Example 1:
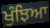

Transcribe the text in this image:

ਖੁੰਝਿਆ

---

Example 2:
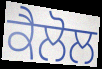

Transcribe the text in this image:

ਕੈਲੋਲ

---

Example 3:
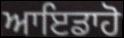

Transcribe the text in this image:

ਆਇਡਾਹੋ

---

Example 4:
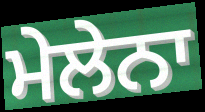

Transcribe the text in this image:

ਮੇਲੇਨਾ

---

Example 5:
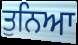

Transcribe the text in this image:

ਤੁਨਿਆ